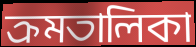
ক্রমতালিকা